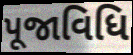
પૂજાવિધિ